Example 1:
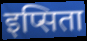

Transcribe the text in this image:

इप्सिता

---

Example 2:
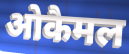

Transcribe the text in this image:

ओकैमल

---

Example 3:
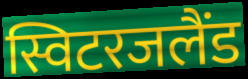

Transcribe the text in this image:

स्विटरजलैंड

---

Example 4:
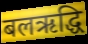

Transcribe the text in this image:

बलऋद्धि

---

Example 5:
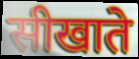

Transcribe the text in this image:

सीखाते